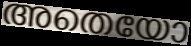
അതെയോ